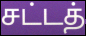
சட்டத்